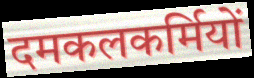
दमकलकर्मियों